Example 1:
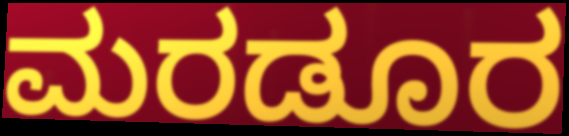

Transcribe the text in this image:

ಮರಡೂರ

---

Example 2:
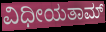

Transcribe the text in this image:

ವಿಧೀಯತಾಮ್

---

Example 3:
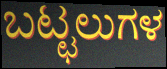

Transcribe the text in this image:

ಬಟ್ಟಲುಗಳ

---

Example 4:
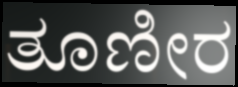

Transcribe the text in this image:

ತೂಣೀರ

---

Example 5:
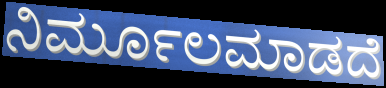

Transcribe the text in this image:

ನಿರ್ಮೂಲಮಾಡದೆ